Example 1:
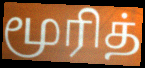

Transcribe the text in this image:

மூரித்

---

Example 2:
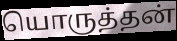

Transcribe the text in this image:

யொருத்தன்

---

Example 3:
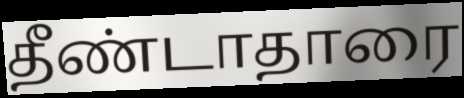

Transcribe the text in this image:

தீண்டாதாரை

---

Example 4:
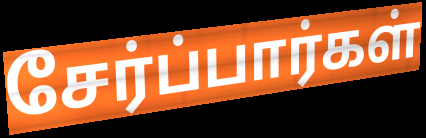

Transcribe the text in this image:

சேர்ப்பார்கள்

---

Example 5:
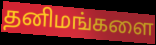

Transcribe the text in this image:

தனிமங்களை